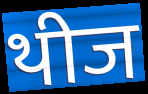
थीज